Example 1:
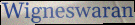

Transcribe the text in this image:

Wigneswaran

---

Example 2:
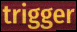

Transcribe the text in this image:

trigger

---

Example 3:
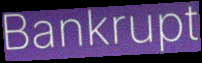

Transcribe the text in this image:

Bankrupt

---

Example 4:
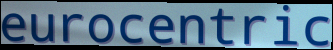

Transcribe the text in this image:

eurocentric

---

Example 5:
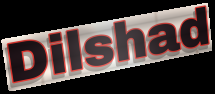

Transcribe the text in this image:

Dilshad